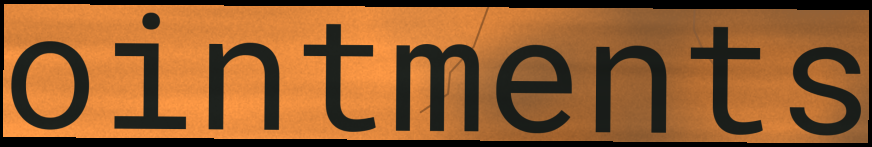
ointments